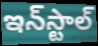
ఇన్‌స్టాల్